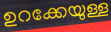
ഉറക്കേയുള്ള